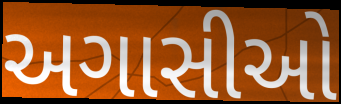
અગાસીઓ